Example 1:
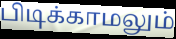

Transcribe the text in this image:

பிடிக்காமலும்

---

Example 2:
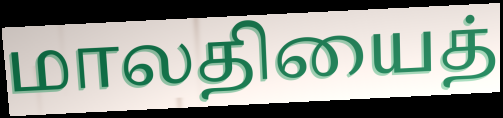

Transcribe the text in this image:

மாலதியைத்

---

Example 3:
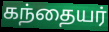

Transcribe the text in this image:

கந்தையர்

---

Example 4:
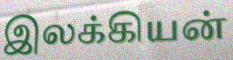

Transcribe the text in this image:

இலக்கியன்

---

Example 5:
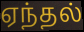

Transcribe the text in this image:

ஏந்தல்